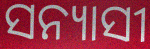
ସନ୍ଯାସୀ